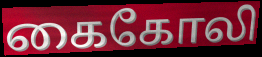
கைகோலி